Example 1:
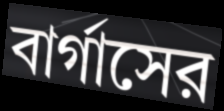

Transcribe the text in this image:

বার্গাসের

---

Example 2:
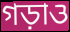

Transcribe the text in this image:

গড়াও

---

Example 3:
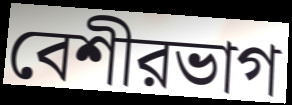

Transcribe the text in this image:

বেশীরভাগ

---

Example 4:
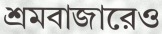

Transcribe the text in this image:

শ্রমবাজারেও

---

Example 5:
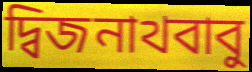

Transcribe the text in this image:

দ্বিজনাথবাবু